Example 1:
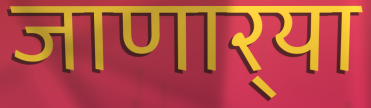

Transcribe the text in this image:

जाणार्‍या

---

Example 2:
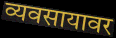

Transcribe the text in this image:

व्यवसायावर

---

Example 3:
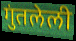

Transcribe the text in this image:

गुंतलेली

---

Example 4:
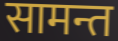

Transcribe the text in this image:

सामन्त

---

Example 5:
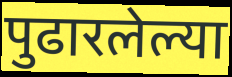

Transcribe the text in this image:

पुढारलेल्या